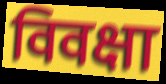
विवक्षा